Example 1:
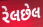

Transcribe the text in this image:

રેલછેલ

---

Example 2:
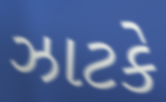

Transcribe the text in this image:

ઝાટકે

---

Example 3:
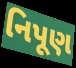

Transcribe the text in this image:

નિપૂણ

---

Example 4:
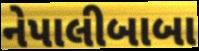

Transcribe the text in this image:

નેપાલીબાબા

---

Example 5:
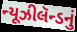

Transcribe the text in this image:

ન્યૂઝીલૅન્ડનું